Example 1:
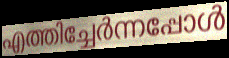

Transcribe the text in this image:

എത്തിച്ചേർന്നപ്പോൾ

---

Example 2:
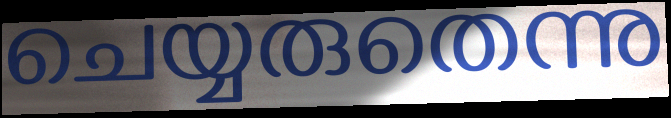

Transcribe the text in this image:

ചെയ്യരുതെന്നു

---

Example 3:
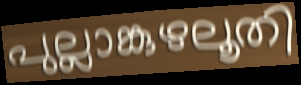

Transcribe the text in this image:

പുല്ലാങ്കുഴലൂതി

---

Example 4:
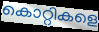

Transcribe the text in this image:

കൊറ്റികളെ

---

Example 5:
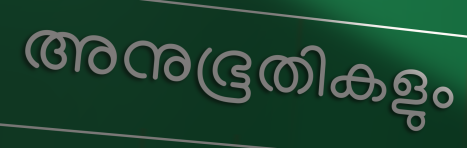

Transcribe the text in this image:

അനുഭൂതികളും